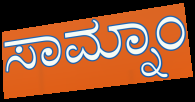
ಸಾಮ್ನಾಂ